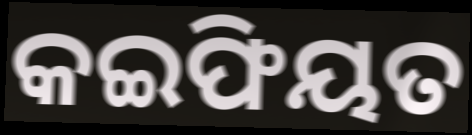
କଇଫିୟତ